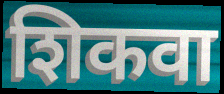
शिकवा